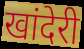
खांदेरी